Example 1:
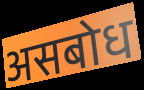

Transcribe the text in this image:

असबोध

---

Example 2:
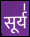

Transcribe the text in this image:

सूर्य॑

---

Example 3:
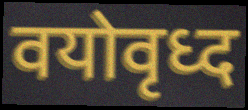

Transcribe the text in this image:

वयोवृध्द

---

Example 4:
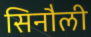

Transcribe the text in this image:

सिनौली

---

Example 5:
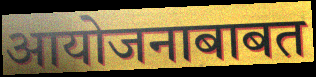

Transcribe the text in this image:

आयोजनाबाबत